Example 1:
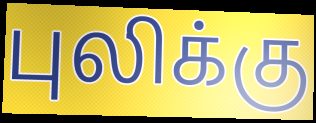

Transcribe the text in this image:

புலிக்கு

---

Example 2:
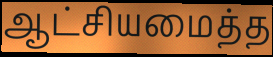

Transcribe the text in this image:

ஆட்சியமைத்த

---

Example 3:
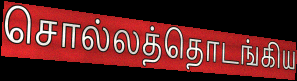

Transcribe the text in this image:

சொல்லத்தொடங்கிய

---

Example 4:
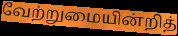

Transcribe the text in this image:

வேற்றுமையின்றித்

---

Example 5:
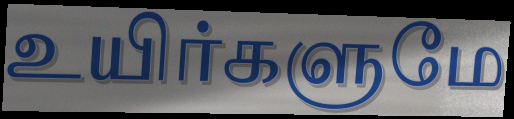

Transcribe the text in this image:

உயிர்களுமே